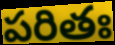
పరితః